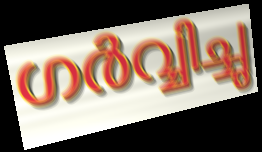
ഗർവ്വിച്ചു